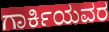
ಗಾರ್ಕಿಯವರ